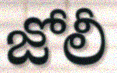
జోలీ